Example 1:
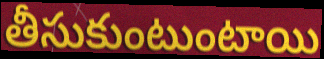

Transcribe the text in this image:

తీసుకుంటుంటాయి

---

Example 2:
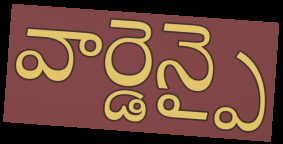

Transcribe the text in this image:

వార్డెన్పై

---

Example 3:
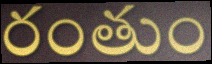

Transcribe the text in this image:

రంతుం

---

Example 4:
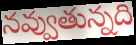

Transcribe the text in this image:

నవ్వుతున్నది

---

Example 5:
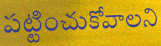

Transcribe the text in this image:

పట్టించుకోవాలని